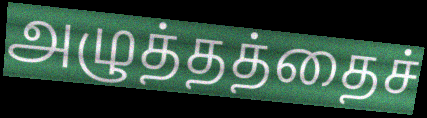
அழுத்தத்தைச்